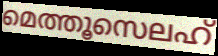
മെത്തൂസെലഹ്